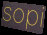
sopi